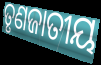
ତୃଣଜାତୀୟ